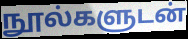
நூல்களுடன்